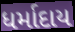
ધર્માદાય